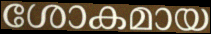
ശോകമായ